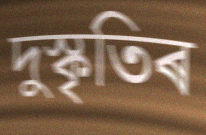
দুস্কৃতিৰ